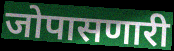
जोपासणारी